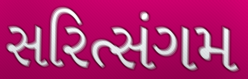
સરિત્સંગમ